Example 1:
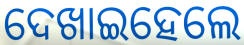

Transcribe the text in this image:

ଦେଖାଇହେଲେ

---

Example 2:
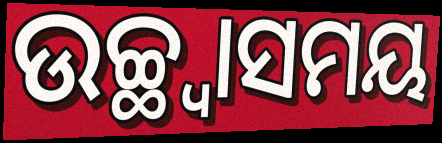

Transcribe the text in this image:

ଉଚ୍ଛ୍ଵାସମୟ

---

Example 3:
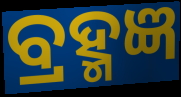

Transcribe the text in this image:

ବ୍ରହ୍ମଜ୍ଞ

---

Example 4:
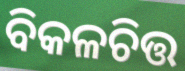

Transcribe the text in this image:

ବିକଳଚିତ୍ତ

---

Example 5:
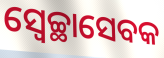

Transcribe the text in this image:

ସ୍ୱେଚ୍ଛାସେବକ